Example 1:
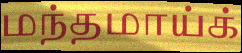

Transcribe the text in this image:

மந்தமாய்க்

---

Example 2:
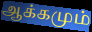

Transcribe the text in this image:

ஆக்கமும்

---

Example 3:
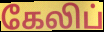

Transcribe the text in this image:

கேலிப்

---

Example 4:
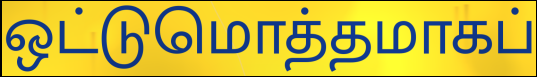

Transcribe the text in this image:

ஒட்டுமொத்தமாகப்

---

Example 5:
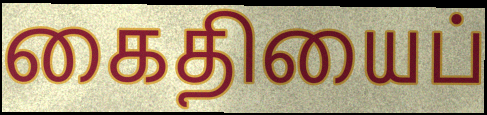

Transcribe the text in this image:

கைதியைப்